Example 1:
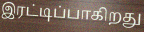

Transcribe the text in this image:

இரட்டிப்பாகிறது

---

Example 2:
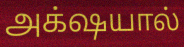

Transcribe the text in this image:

அக்‌ஷயால்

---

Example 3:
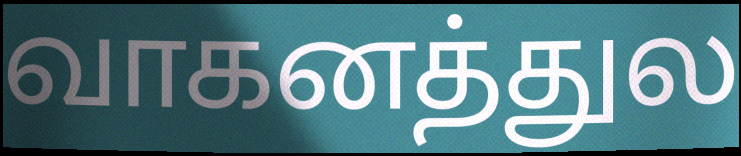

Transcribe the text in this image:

வாகனத்துல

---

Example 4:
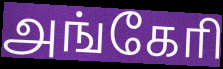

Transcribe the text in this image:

அங்கேரி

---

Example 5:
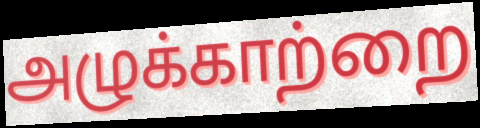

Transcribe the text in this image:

அழுக்காற்றை